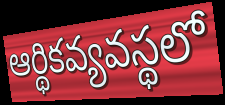
ఆర్థికవ్యవస్థలో